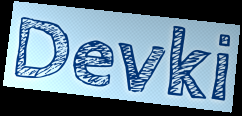
Devki